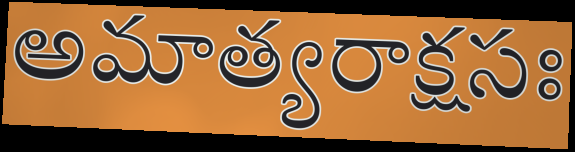
అమాత్యరాక్షసః